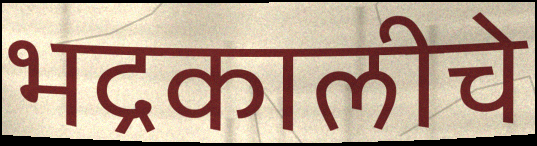
भद्रकालीचे